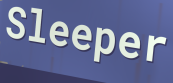
Sleeper